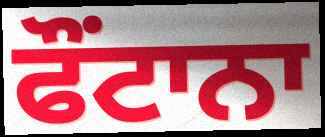
ਫੌਂਟਾਨਾ